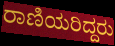
ರಾಣಿಯರಿದ್ದರು